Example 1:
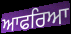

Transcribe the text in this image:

ਆਫਰਿਆ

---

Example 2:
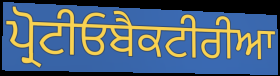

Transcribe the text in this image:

ਪ੍ਰੋਟੀਓਬੈਕਟੀਰੀਆ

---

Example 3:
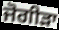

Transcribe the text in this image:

ਜੋਗੀੜਾ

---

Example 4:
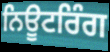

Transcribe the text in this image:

ਨਿਊਟਰਿੰਗ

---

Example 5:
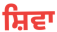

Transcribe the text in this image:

ਸ਼ਿਵਾ